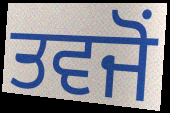
ਤਵਜੋਂ